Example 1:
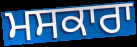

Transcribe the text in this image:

ਮਸਕਾਰਾ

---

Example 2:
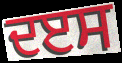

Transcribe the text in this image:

ਦੲਸ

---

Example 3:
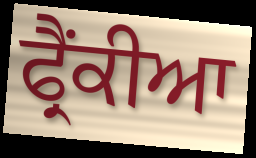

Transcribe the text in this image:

ਫ੍ਰੈਂਕੀਆ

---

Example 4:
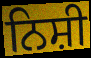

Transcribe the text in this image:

ਨਿਸ਼ੀ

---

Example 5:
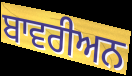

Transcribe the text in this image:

ਬਾਵਰੀਅਨ